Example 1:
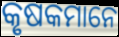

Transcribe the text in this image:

କୃଷକମାନେ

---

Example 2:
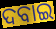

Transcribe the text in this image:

ଦବାଇ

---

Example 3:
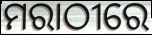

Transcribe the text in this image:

ମରାଠୀରେ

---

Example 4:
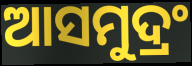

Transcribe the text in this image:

ଆସମୁଦ୍ରଂ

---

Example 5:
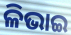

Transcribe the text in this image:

ଳିଭାଇ